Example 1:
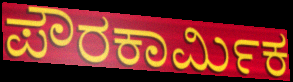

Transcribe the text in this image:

ಪೌರಕಾರ್ಮಿಕ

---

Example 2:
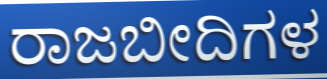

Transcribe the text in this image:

ರಾಜಬೀದಿಗಳ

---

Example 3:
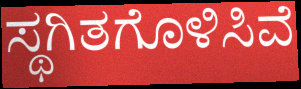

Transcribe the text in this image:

ಸ್ಥಗಿತಗೊಳಿಸಿವೆ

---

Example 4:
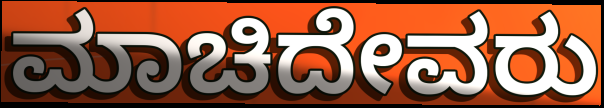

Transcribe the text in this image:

ಮಾಚಿದೇವರು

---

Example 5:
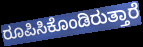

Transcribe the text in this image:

ರೂಪಿಸಿಕೊಂಡಿರುತ್ತಾರೆ